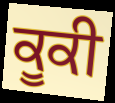
ਕੂਕੀ